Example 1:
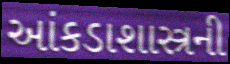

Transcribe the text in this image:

આંકડાશાસ્ત્રની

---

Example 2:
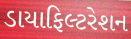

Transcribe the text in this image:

ડાયાફિલ્ટરેશન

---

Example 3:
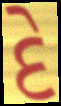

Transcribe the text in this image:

દે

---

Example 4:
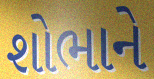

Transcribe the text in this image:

શોભાને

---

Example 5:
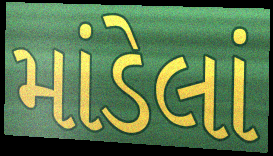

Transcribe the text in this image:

માંડેલાં